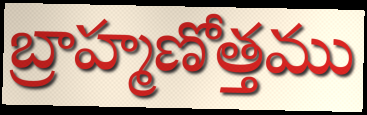
బ్రాహ్మణోత్తము